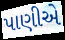
પાણીએ